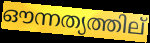
ഔന്നത്യത്തില്